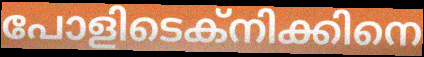
പോളിടെക്നിക്കിനെ